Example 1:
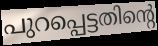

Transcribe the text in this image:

പുറപ്പെട്ടതിന്റെ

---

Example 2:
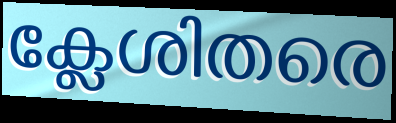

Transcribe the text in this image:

ക്ലേശിതരെ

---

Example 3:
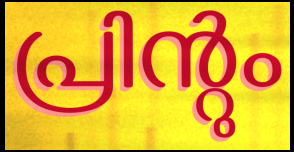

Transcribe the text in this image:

പ്രിന്റും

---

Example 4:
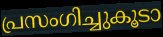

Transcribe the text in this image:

പ്രസംഗിച്ചുകൂടാ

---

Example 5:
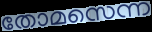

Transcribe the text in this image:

തോമസെന്ന